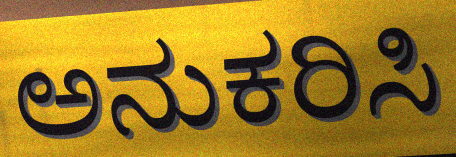
ಅನುಕರಿಸಿ